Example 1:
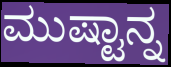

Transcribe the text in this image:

ಮುಷ್ಟಾನ್ನ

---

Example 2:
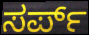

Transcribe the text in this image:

ಸರ್ಪ್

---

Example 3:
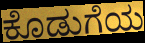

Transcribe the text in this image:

ಕೊಡುಗೆಯ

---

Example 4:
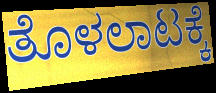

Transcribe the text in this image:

ತೊಳಲಾಟಕ್ಕೆ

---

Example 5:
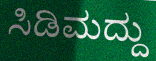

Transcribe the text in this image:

ಸಿಡಿಮದ್ದು